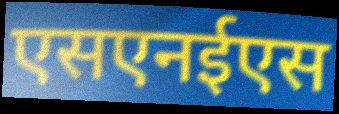
एसएनईएस